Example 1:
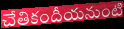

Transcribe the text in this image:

చేతికందీయనుంటి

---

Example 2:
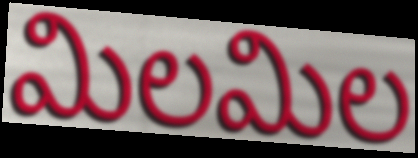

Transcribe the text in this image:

మిలమిల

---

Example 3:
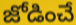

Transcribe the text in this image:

జోడించే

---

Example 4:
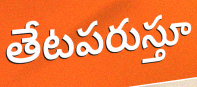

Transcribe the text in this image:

తేటపరుస్తూ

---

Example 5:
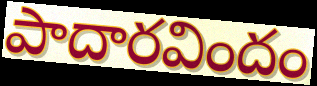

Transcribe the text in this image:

పాదారవిందం